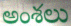
అంశలు